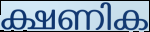
ക്ഷണിക